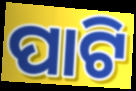
ପାଟି